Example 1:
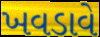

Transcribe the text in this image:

ખવડાવે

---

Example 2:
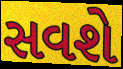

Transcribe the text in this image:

સવશે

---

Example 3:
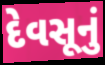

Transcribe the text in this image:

દેવસૂનું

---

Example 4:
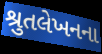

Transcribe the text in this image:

શ્રુતલેખનના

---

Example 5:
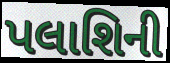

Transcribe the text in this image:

પલાશિની